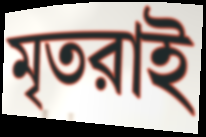
মৃতরাই